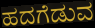
ಹದಗೆಡುವ